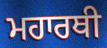
ਮਹਾਰਥੀ